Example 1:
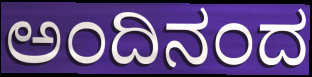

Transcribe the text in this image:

ಅಂದಿನಂದ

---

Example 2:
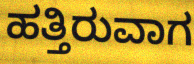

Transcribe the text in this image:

ಹತ್ತಿರುವಾಗ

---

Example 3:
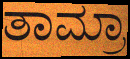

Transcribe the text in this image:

ತಾಮ್ರಾ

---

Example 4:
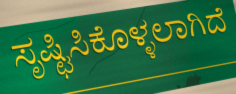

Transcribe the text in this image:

ಸೃಷ್ಟಿಸಿಕೊಳ್ಳಲಾಗಿದೆ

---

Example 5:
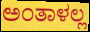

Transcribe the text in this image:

ಅಂತಾಳಲ್ಲ